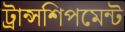
ট্রান্সশিপমেন্ট